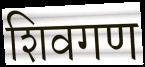
शिवगण